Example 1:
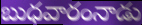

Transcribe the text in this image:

బుధవారంనాడు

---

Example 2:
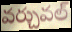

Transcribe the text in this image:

వర్చువల్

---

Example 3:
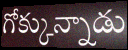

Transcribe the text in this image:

గోక్కున్నాడు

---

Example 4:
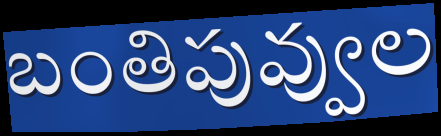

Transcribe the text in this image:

బంతిపువ్వుల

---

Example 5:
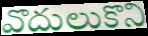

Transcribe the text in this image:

వొదులుకొని